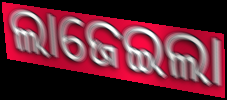
ଲାଜେଇଲା